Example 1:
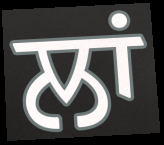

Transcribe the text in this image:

ਲਾਂ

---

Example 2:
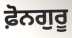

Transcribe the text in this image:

ਫ਼ੋਨਗੁਰੂ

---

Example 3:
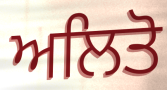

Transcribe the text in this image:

ਅਲਿਤੋ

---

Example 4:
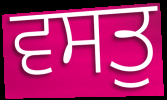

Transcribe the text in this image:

ਵਸਤੁ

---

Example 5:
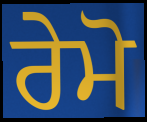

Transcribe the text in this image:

ਰੇਮੋ